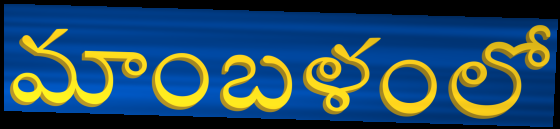
మాంబళంలో